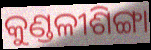
କୁଣ୍ଡଳୀଶିଙ୍ଗା